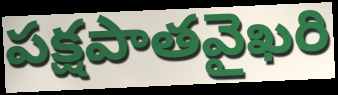
పక్షపాతవైఖరి